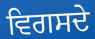
ਵਿਗਸਦੇ